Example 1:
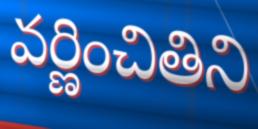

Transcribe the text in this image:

వర్ణించితిని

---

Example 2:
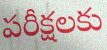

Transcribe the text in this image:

పరీక్షలకు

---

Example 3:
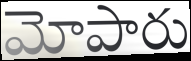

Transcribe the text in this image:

మోపారు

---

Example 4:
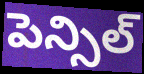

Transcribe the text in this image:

పెన్సిల్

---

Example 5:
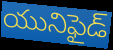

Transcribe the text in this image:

యునిఫైడ్